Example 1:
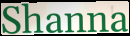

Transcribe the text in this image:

Shanna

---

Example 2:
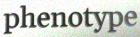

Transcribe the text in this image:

phenotype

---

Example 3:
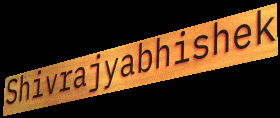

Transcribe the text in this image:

Shivrajyabhishek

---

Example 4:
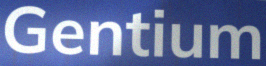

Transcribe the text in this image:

Gentium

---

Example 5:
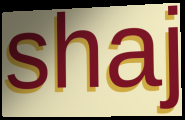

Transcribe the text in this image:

shaj